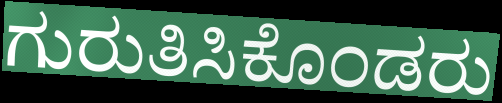
ಗುರುತಿಸಿಕೊಂಡರು